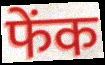
फेंक